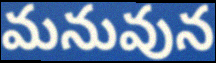
మనువున